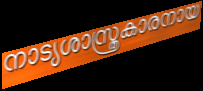
നാട്യശാസ്ത്രകാരനായ